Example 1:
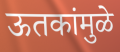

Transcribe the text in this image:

ऊतकांमुळे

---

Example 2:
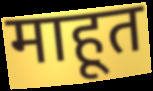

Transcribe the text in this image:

माहूत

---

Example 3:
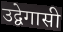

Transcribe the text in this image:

उद्वेगासी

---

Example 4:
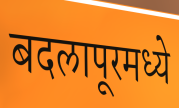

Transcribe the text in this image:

बदलापूरमध्ये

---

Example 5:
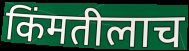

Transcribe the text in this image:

किंमतीलाच